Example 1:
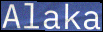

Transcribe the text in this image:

Alaka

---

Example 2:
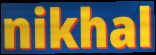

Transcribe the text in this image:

nikhal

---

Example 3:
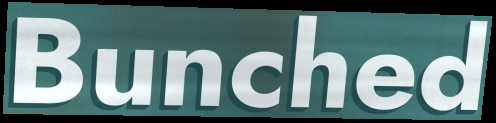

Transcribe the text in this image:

Bunched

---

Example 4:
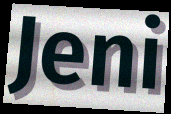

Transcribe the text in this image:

Jeni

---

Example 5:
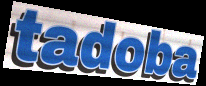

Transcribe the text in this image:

tadoba